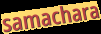
samachara